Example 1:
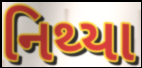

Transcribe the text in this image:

નિથ્યા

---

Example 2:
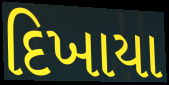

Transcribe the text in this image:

દિખાયા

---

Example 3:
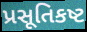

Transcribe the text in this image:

પ્રસૂતિકષ્ટ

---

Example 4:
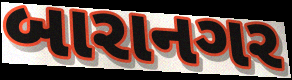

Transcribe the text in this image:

બારાનગર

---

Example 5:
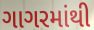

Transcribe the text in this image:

ગાગરમાંથી